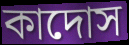
কাদোস